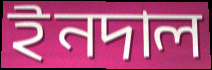
ইনদাল